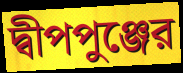
দ্বীপপুঞ্জের